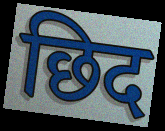
छिद